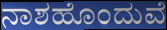
ನಾಶಹೊಂದುವೆ